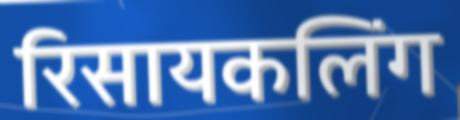
रिसायकलिंग